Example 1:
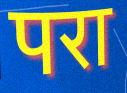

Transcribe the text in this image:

परा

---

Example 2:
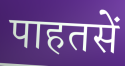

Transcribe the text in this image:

पाहतसें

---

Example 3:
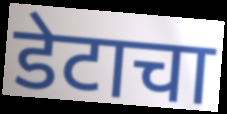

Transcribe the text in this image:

डेटाचा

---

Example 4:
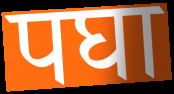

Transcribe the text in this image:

पघा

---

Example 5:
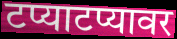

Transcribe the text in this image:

टप्याटप्यावर